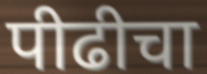
पीढीचा